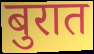
बुरात